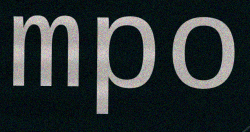
mpo